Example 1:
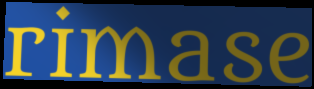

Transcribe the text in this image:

rimase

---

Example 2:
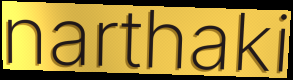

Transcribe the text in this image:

narthaki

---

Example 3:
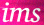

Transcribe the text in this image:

ims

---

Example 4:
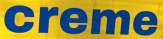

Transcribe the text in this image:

creme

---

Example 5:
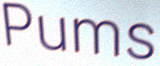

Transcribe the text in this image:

Pums